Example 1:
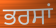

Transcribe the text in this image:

ਭਰਸਾਂ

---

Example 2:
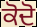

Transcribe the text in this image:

ਕੋਦੋ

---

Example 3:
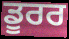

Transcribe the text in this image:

ਡੂਰਰ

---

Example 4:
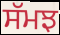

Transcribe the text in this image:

ਸੱਮਝ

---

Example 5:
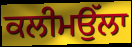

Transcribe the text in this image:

ਕਲੀਮਉੱਲਾ